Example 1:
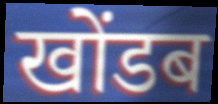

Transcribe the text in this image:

खोंडब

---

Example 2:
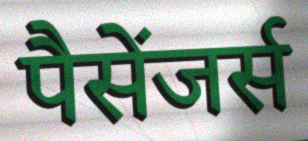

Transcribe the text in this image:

पैसेंजर्स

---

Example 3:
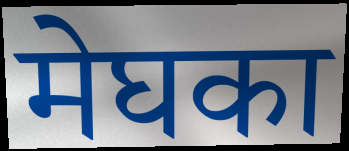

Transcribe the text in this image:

मेघका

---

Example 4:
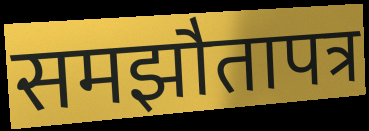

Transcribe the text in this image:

समझौतापत्र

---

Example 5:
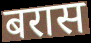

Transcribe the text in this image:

बरास